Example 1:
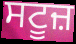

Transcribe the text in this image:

ਸਟੂਜ਼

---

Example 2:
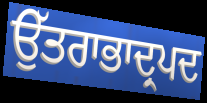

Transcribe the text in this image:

ਉੱਤਰਾਭਾਦ੍ਰਪਦ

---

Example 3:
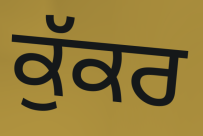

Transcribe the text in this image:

ਕੁੱਕਰ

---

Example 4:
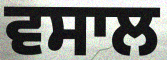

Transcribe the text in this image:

ਵਸਾਲ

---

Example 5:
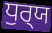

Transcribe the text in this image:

ਧੁਰ੍‍ਯ